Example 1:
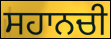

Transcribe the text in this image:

ਸਹਾਨਚੀ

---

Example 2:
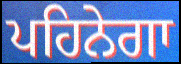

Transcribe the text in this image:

ਪਹਿਨੇਗਾ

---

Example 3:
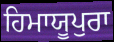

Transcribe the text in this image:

ਹਿਮਾਯੂਪੁਰਾ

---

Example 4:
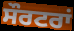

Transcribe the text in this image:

ਸੌਰਟਰਾਂ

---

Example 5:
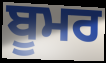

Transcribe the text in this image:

ਬੂਮਰ